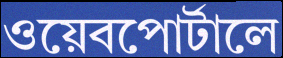
ওয়েবপোর্টালে